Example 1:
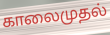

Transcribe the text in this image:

காலைமுதல்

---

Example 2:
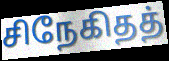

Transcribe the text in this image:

சிநேகிதத்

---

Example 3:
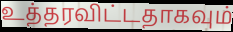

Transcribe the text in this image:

உத்தரவிட்டதாகவும்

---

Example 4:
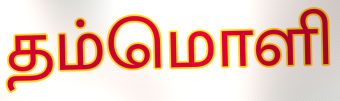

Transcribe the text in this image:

தம்மொளி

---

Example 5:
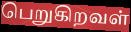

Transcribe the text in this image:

பெறுகிறவள்